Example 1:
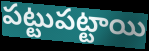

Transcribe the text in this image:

పట్టుపట్టాయి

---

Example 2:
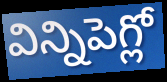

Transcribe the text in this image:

విన్నిపెగ్లో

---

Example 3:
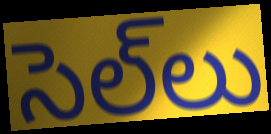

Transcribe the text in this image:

సెల్‌లు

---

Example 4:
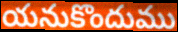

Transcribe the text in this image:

యనుకొందుము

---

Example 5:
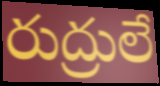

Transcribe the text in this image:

రుద్రులే